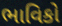
ભાવિકો